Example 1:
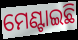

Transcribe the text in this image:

ମେଣ୍ଟାଇଛି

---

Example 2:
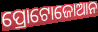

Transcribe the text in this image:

ପ୍ରୋଟୋଜୋଆନ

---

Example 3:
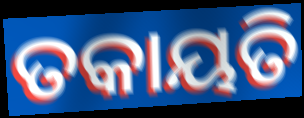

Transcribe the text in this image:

ତକାୟତି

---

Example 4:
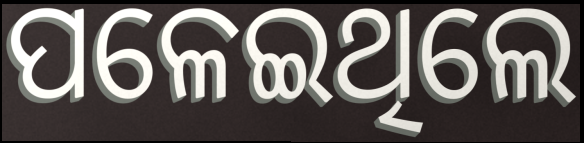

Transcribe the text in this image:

ପଳେଇଥିଲେ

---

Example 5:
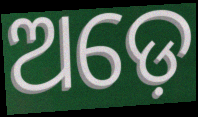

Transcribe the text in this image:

ଅଡ଼େ